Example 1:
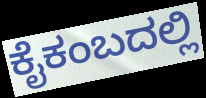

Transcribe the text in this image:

ಕೈಕಂಬದಲ್ಲಿ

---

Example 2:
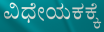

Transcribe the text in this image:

ವಿಧೇಯಕಕ್ಕೆ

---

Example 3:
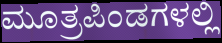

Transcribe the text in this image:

ಮೂತ್ರಪಿಂಡಗಳಲ್ಲಿ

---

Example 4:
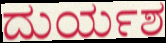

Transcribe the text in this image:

ದುರ್ಯಶ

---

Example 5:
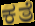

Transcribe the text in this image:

ಕತೆ